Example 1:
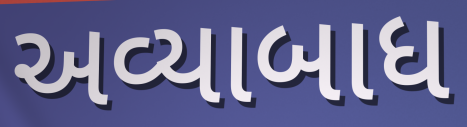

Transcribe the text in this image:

અવ્યાબાધ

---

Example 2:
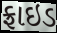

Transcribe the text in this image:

ફ્રાઇડ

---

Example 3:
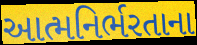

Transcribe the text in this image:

આત્મનિર્ભરતાના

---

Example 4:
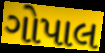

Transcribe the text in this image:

ગોપાલ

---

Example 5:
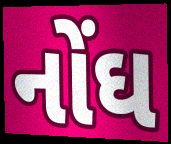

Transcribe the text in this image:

નોંઘ